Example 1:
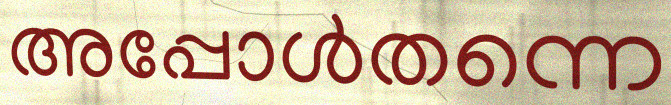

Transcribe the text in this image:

അപ്പോൾതന്നെ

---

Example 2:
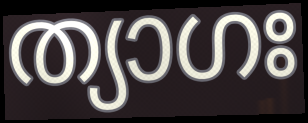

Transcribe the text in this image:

ത്യാഗഃ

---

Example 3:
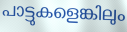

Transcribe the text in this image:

പാട്ടുകളെങ്കിലും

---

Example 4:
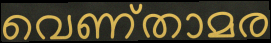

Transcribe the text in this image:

വെണ്താമര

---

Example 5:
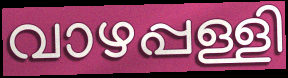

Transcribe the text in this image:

വാഴപ്പള്ളി